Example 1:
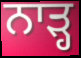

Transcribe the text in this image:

ਨਾੜ੍ਹ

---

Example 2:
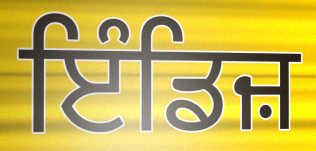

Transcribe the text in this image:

ਇੰਡਿਜ਼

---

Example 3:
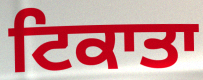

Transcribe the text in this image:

ਟਿਕਾਤਾ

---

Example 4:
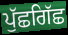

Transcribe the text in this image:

ਪੁੱਛਗਿੱਛ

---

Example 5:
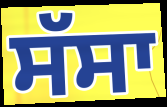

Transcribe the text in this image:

ਸੱਸਾ